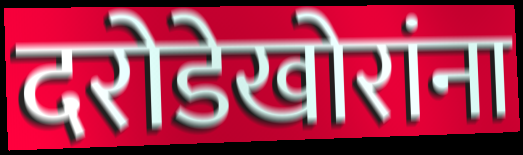
दरोडेखोरांना